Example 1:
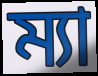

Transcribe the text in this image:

ম্যা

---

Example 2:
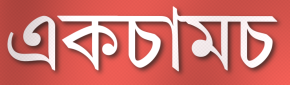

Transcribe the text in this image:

একচামচ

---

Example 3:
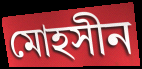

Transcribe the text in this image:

মোহসীন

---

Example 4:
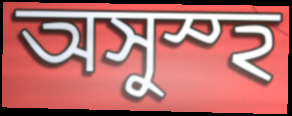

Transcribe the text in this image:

অসুস্হ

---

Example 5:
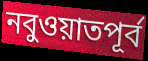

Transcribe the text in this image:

নবুওয়াতপূর্ব